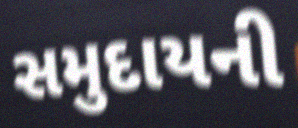
સમુદાયની